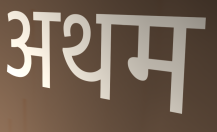
अथम